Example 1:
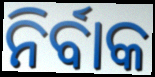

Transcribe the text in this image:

ନିର୍ବାକ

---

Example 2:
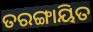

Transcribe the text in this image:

ତରଙ୍ଗାୟିତ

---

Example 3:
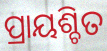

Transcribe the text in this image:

ପ୍ରାୟଶ୍ଚିତ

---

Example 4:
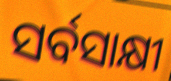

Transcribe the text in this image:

ସର୍ବସାକ୍ଷୀ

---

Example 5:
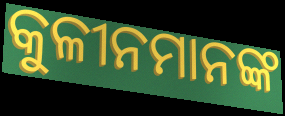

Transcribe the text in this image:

କୁଳୀନମାନଙ୍କ